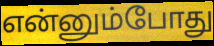
என்னும்போது